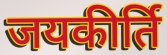
जयकीर्ति